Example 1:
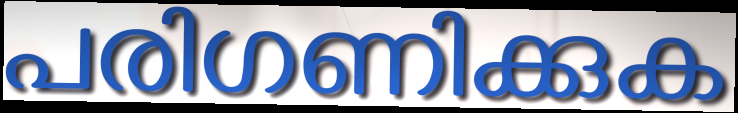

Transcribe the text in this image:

പരിഗണിക്കുക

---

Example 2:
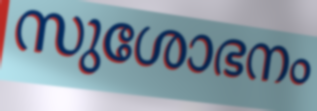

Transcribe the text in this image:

സുശോഭനം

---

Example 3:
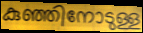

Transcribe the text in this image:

കുഞ്ഞിനോടുള്ള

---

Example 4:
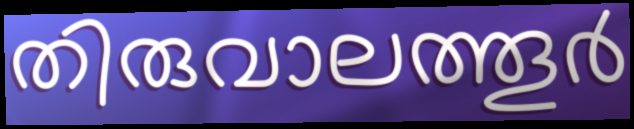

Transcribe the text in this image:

തിരുവാലത്തൂർ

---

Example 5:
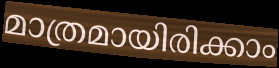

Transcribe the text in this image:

മാത്രമായിരിക്കാം